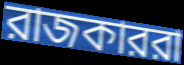
রাজকাররা